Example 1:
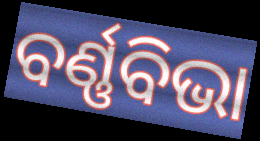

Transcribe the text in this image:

ବର୍ଣ୍ଣବିଭା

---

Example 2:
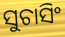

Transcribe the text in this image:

ସୁଚାସିଂ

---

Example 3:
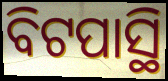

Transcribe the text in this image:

ବିଟପାସ୍ଥି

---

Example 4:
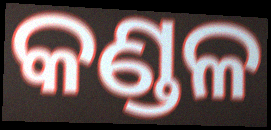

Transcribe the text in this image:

କଣ୍ଡଳ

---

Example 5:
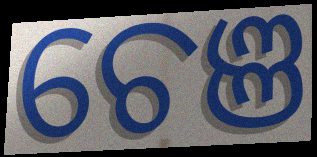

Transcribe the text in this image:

ଚେଞ